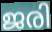
ജരി